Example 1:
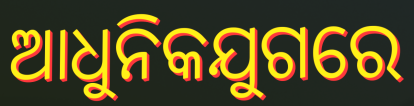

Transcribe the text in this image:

ଆଧୁନିକଯୁଗରେ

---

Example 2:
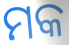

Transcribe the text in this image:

ମକ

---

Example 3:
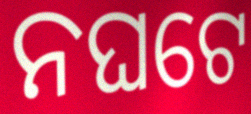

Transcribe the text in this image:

ନଘଟେ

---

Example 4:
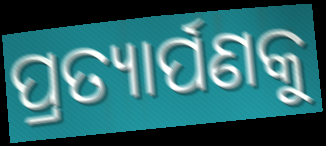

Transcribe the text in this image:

ପ୍ରତ୍ୟାର୍ପଣକୁ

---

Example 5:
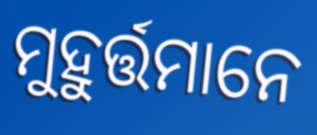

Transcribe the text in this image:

ମୁହୁର୍ତ୍ତମାନେ